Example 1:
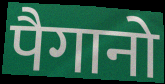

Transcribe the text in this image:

पैगानो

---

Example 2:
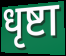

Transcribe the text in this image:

धृष्टा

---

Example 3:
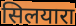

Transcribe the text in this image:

सिलयारा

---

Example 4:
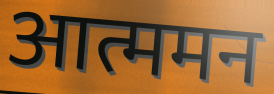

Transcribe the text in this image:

आत्ममन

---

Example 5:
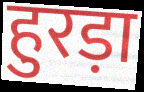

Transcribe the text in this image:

हुरड़ा